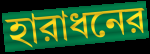
হারাধনের